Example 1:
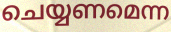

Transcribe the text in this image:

ചെയ്യണമെന്ന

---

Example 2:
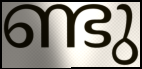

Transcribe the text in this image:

ണ്ടു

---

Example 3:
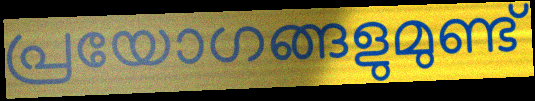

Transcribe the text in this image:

പ്രയോഗങ്ങളുമുണ്ട്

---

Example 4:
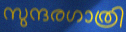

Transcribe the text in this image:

സുന്ദരഗാത്രി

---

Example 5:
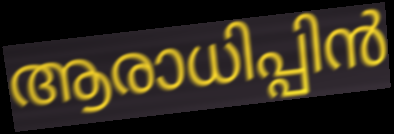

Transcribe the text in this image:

ആരാധിപ്പിൻ